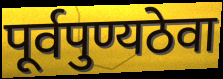
पूर्वपुण्यठेवा